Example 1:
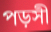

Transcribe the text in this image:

পড়সী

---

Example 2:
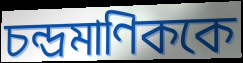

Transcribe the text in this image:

চন্দ্রমাণিককে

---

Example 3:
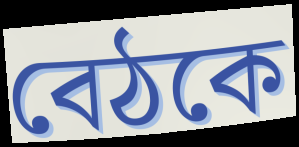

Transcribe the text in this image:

বেঠকে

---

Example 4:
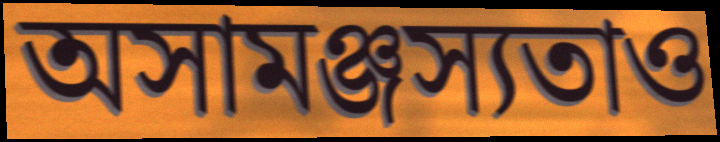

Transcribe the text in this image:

অসামঞ্জস্যতাও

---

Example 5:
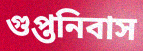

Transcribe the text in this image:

গুপ্তনিবাস